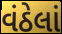
વંઠેલાં